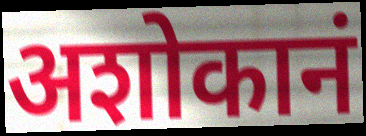
अशोकानं